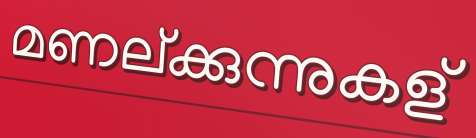
മണല്ക്കുന്നുകള്